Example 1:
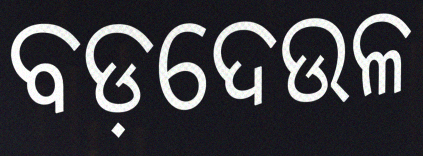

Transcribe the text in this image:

ବଡ଼ଦେଉଳ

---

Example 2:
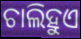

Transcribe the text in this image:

ଚାଲିହୁଏ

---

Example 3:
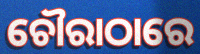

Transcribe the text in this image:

ଚୌରାଠାରେ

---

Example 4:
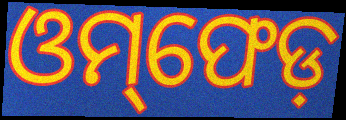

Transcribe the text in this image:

ଓମ୍‌ଫେଡ଼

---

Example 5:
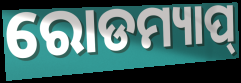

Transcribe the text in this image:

ରୋଡମ୍ୟାପ୍